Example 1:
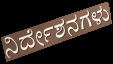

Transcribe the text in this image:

ನಿರ್ದೇಶನಗಳು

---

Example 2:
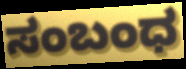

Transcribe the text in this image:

ಸಂಬಂಧ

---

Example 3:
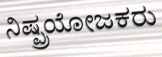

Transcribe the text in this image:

ನಿಷ್ಪ್ರಯೋಜಕರು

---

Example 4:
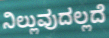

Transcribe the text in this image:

ನಿಲ್ಲುವುದಲ್ಲದೆ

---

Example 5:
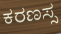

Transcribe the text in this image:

ಕರಣಸ್ಸ